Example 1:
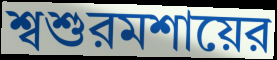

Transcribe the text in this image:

শ্বশুরমশায়ের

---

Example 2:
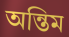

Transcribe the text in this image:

অন্তিম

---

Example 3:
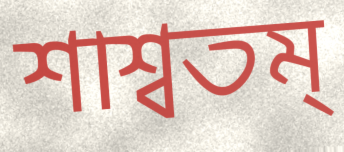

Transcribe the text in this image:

শাশ্বতম্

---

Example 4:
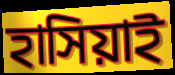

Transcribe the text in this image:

হাসিয়াই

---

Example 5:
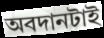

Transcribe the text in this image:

অবদানটাই